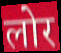
लोर